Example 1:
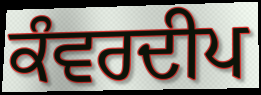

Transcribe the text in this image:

ਕੰਵਰਦੀਪ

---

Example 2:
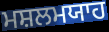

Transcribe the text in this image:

ਮਸ਼ਲਮਯਾਹ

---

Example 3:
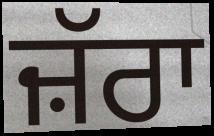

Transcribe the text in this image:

ਜ਼ੱਰਾ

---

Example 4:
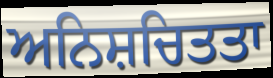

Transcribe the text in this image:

ਅਨਿਸ਼ਚਿਤਤਾ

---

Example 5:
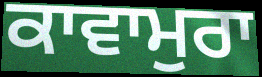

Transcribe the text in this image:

ਕਾਵਾਮੁਰਾ